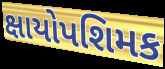
ક્ષાયોપશિમક